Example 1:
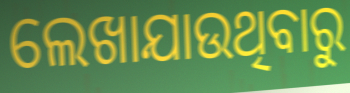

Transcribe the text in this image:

ଲେଖାଯାଉଥିବାରୁ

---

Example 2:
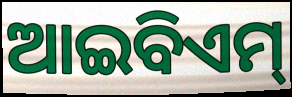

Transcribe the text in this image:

ଆଇବିଏମ୍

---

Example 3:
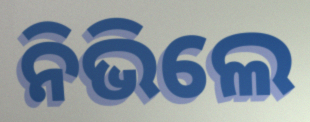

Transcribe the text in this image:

ନିଭିଲେ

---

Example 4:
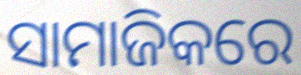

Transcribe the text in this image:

ସାମାଜିକରେ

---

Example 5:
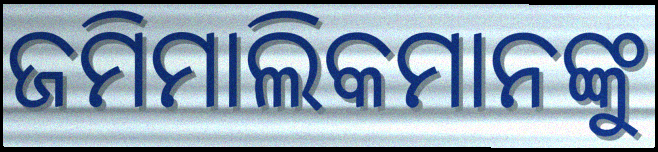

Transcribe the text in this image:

ଜମିମାଲିକମାନଙ୍କୁ